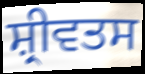
ਸ਼੍ਰੀਵਤਸ